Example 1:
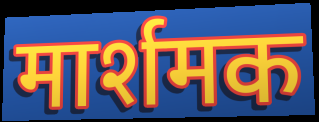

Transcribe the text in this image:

मार्शमक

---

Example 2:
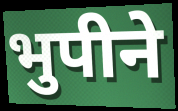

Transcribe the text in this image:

भुपीने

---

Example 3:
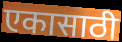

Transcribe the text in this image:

एकासाठी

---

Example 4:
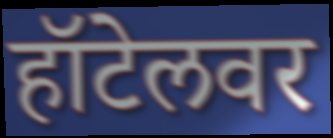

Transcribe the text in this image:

हॉटेलवर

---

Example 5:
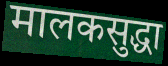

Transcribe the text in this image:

मालकसुद्धा